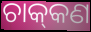
ଚାକ୍‌କଣ